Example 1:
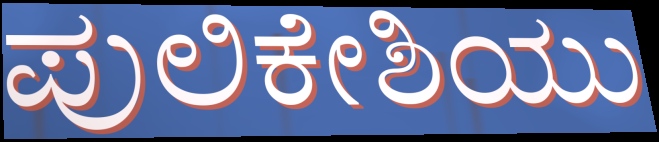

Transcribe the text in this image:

ಪುಲಿಕೇಶಿಯು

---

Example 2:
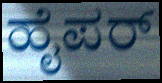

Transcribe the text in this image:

ಹೈಪರ್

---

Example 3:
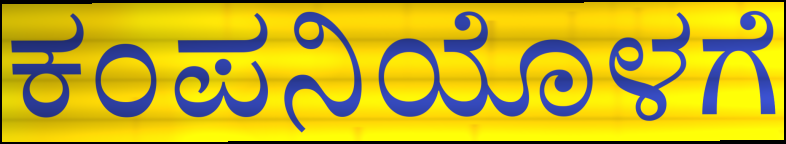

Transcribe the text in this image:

ಕಂಪನಿಯೊಳಗೆ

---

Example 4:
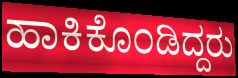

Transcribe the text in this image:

ಹಾಕಿಕೊಂಡಿದ್ದರು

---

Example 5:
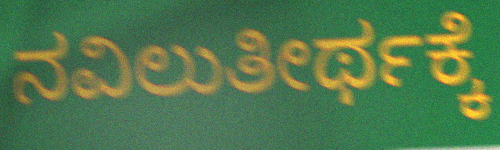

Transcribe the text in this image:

ನವಿಲುತೀರ್ಥಕ್ಕೆ